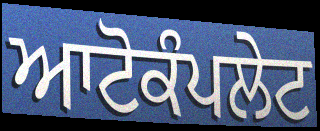
ਆਟੋਕੰਪਲੇਟ